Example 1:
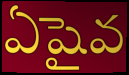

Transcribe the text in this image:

ఏషైవ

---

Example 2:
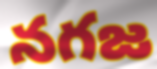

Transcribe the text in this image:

నగజ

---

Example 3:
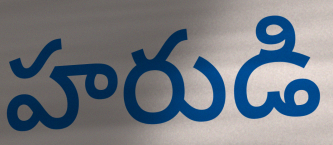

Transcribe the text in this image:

హరుడి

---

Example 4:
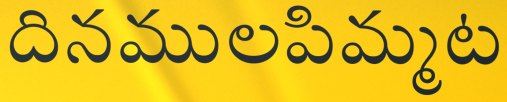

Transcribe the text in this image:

దినములపిమ్మట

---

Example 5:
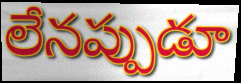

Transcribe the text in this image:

లేనప్పుడూ